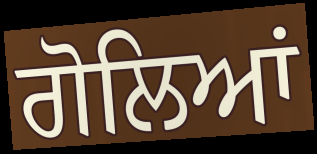
ਗੋਲਿਆਂ